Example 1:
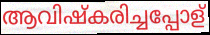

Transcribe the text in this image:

ആവിഷ്കരിച്ചപ്പോള്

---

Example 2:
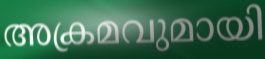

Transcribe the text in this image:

അക്രമവുമായി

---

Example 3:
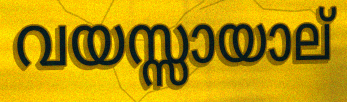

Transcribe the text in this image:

വയസ്സായാല്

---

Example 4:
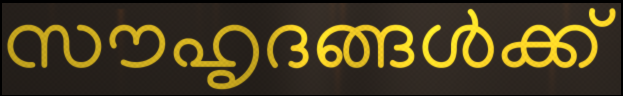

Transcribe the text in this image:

സൗഹൃദങ്ങൾക്ക്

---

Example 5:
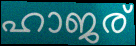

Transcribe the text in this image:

ഹാജര്